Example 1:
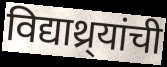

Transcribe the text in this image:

विद्याथ्र्यांची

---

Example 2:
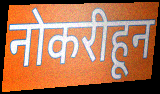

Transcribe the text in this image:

नोकरीहून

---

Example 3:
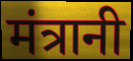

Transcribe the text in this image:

मंत्रानी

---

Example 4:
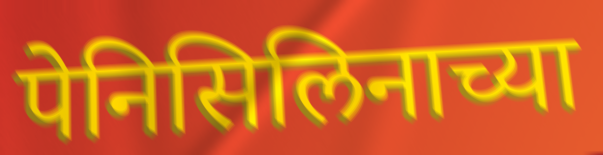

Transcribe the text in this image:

पेनिसिलिनाच्या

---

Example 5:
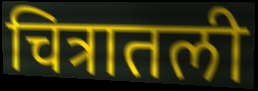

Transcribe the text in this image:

चित्रातली